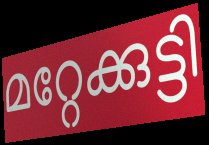
മറ്റേക്കുട്ടി